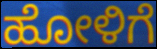
ಹೋಳಿಗೆ